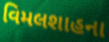
વિમલશાહના